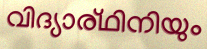
വിദ്യാര്ഥിനിയും